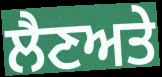
ਲੈਣਅਤੇ